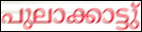
പുലാക്കാട്ടു്